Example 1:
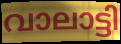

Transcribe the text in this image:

വാലാട്ടി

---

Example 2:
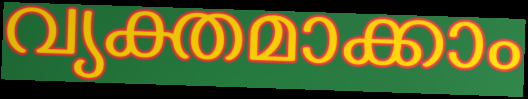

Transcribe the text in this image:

വ്യക്തമാക്കാം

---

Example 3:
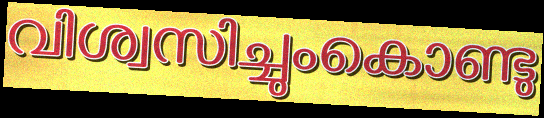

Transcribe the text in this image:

വിശ്വസിച്ചുംകൊണ്ടു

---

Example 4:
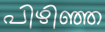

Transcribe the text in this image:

പിഴിഞ്ഞ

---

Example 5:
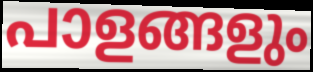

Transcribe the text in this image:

പാളങ്ങളും